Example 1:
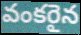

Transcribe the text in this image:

వంకరైన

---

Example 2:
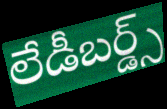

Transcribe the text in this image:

లేడీబర్డ్స్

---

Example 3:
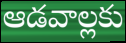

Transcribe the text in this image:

ఆడవాల్లకు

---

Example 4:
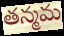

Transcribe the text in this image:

తన్మమ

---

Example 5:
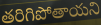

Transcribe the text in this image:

తరిగిపోతాయని